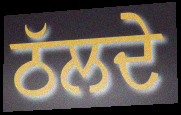
ਠੱਲਦੇ